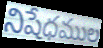
నిషేధముల